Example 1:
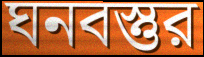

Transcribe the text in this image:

ঘনবস্তুর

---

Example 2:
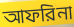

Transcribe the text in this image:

আফরিনা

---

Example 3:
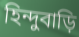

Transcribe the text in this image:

হিন্দুবাড়ি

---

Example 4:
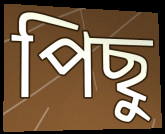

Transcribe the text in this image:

পিছু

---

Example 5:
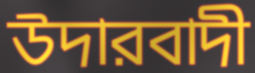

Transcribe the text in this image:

উদারবাদী